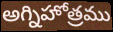
అగ్నిహోత్రము